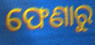
ଫେଣାରୁ